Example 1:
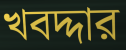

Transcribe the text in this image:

খবদ্দার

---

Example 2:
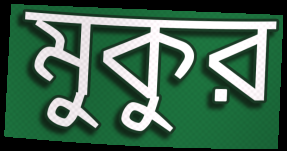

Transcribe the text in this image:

মুকুর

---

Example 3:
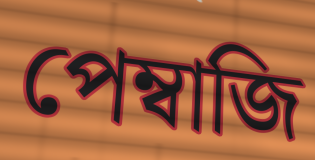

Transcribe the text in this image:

পেম্বাজি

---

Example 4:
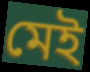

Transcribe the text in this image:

মেই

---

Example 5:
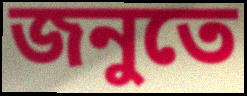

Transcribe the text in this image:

জনুতে